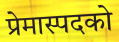
प्रेमास्पदको